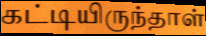
கட்டியிருந்தாள்